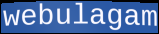
webulagam